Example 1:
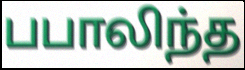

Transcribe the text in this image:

பபாலிந்த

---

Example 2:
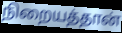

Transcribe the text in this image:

நிறையத்தான்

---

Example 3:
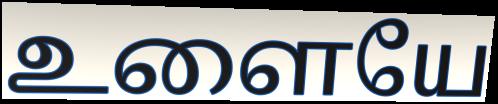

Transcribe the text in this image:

உளையே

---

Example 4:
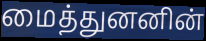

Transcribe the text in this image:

மைத்துனனின்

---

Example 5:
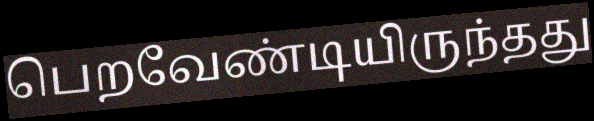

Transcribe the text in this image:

பெறவேண்டியிருந்தது